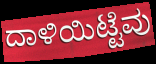
ದಾಳಿಯಿಟ್ಟೆವು